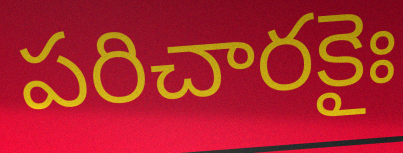
పరిచారకైః